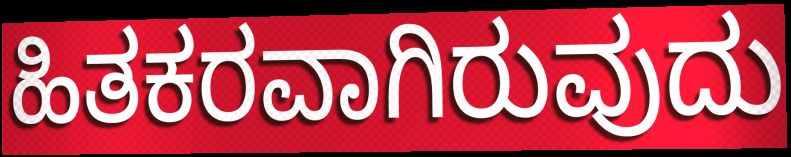
ಹಿತಕರವಾಗಿರುವುದು